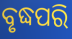
ବୃଦ୍ଧପରି